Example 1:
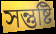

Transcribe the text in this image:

সন্তুষ্টি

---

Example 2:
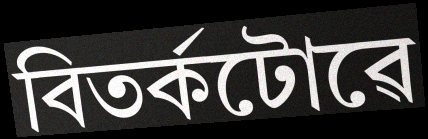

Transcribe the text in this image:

বিতৰ্কটোৱে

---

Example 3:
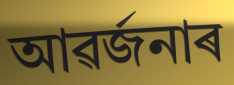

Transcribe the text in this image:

আৱৰ্জনাৰ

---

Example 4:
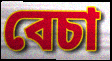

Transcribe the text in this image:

বেচা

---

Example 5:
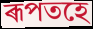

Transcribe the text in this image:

ৰূপতহে